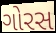
ગોરસ